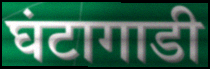
घंटागाडी